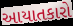
આયાતકારો